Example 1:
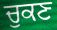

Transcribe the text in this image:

ਚੁਕਣ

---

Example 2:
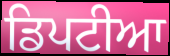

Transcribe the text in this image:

ਡਿਪਟੀਆ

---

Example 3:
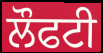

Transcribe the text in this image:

ਲੌਫਟੀ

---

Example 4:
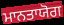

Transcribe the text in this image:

ਮਾਨਤਾਯੋਗ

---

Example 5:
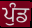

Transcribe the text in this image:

ਪੁੰਡ